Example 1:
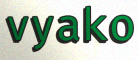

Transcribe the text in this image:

vyako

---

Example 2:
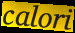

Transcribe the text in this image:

calori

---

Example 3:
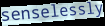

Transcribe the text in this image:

senselessly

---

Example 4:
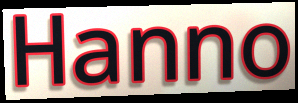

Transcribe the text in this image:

Hanno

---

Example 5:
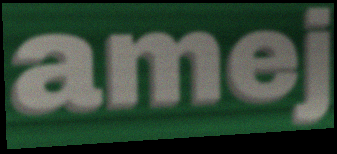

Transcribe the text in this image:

amej